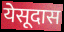
येसूदास